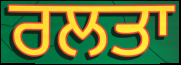
ਰਲਤਾ